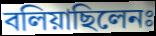
বলিয়াছিলেনঃ